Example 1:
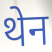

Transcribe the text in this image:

थेन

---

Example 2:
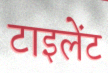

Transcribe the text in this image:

टाइलेंट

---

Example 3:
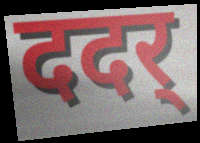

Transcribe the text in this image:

ददर्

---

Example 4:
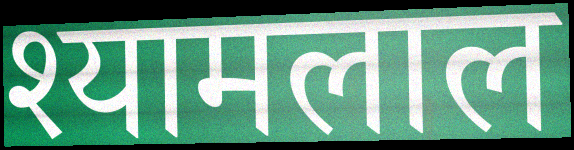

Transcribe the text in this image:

श्यामलाल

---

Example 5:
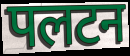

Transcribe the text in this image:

पलटन